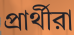
প্রার্থীরা